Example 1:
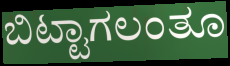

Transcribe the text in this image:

ಬಿಟ್ಟಾಗಲಂತೂ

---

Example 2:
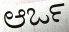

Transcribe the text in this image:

ಆರ್ಒ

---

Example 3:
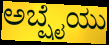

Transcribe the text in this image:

ಅಬ್ಷೈಯು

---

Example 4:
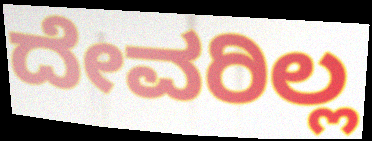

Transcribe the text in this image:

ದೇವರಿಲ್ಲ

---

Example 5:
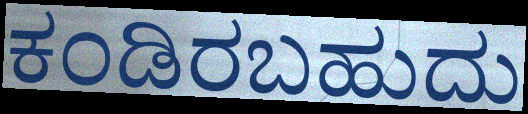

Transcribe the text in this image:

ಕಂಡಿರಬಹುದು